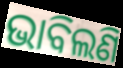
ଭାବିଲଣି